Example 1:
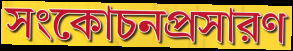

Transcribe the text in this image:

সংকোচনপ্রসারণ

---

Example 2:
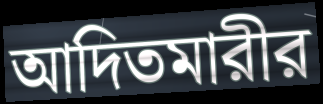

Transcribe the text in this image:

আদিতমারীর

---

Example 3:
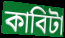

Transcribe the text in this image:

কাবিটা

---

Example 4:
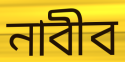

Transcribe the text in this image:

নাবীব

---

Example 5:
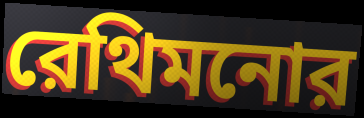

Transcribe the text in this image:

রেথিমনোর